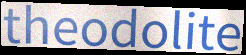
theodolite